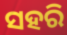
ସହରି